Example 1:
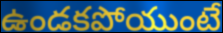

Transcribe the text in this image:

ఉండకపోయుంటే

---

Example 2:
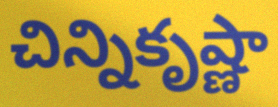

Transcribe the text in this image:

చిన్నికృష్ణా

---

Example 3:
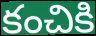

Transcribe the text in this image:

కంచికి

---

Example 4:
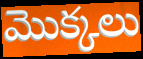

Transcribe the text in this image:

మొక్కలు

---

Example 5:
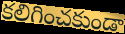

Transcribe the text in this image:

కలిగించకుండా